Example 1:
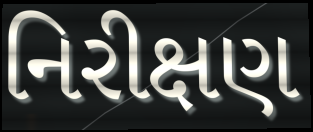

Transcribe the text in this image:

નિરીક્ષણ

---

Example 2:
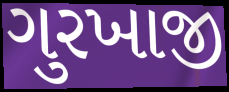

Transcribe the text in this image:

ગુરખાજી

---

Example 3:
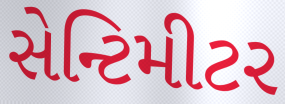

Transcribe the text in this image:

સેન્ટિમીટર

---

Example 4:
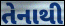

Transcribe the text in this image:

તેનાથી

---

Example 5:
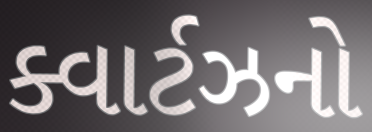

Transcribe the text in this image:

ક્વાર્ટઝનો